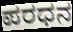
ಪರಧನ